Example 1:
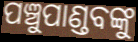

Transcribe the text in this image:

ପଞ୍ଚୁପାଣ୍ଡବଙ୍କୁ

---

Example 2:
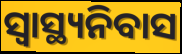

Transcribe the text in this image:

ସ୍ୱାସ୍ଥ୍ୟନିବାସ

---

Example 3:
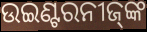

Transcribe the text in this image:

ଉଇଣ୍ଟରନୀଜ୍‌ଙ୍କ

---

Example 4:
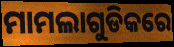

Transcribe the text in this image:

ମାମଲାଗୁଡିକରେ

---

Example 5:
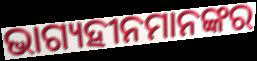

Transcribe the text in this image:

ଭାଗ୍ୟହୀନମାନଙ୍କର